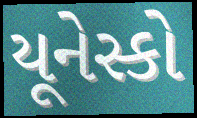
યૂનેસ્કો